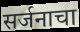
सर्जनाचा